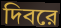
দিবরে